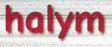
halym